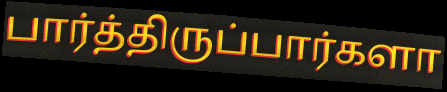
பார்த்திருப்பார்களா